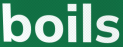
boils